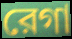
রেগা